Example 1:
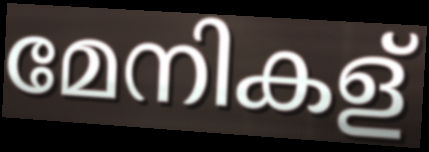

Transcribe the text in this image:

മേനികള്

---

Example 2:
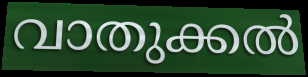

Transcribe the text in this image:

വാതുക്കൽ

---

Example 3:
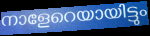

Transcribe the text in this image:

നാളേറെയായിട്ടും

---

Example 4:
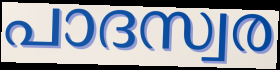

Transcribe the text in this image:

പാദസ്വര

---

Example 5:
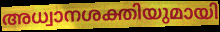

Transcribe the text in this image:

അധ്വാനശക്തിയുമായി